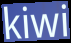
kiwi